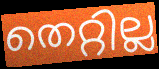
തെറ്റില്ല